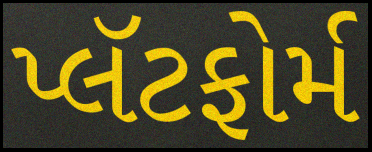
પ્લૅટફોર્મ